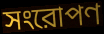
সংরোপণ